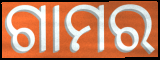
ଗାମର